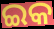
ଇକ